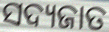
ସଦ୍ୟଜାତ